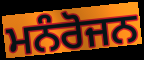
ਮਨੰਰੋਜਨ